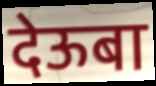
देऊबा